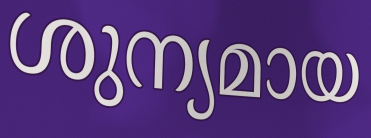
ശുന്യമായ